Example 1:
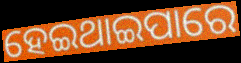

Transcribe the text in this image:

ହେଇଥାଇପାରେ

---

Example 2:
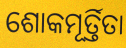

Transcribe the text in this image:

ଶୋକମୂର୍ତ୍ତିତା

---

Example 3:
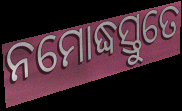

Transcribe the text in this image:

ନମୋଦ୍ଧସ୍ତୁତେ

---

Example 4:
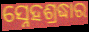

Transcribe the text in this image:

ସ୍ନେହଶ୍ରଦ୍ଧାର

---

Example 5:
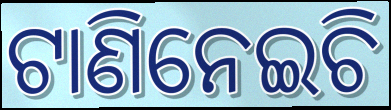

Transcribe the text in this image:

ଟାଣିନେଇଚି